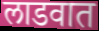
लाडवात